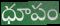
ధూపం